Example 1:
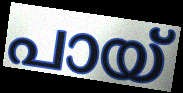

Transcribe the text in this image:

പായ്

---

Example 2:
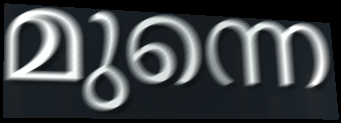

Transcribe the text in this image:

മുന്നെ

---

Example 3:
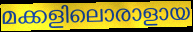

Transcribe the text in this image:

മക്കളിലൊരാളായ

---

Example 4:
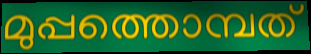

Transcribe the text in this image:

മുപ്പത്തൊമ്പത്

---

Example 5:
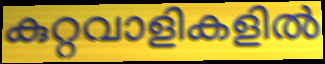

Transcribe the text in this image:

കുറ്റവാളികളിൽ